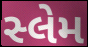
સ્લેમ